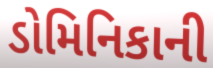
ડોમિનિકાની